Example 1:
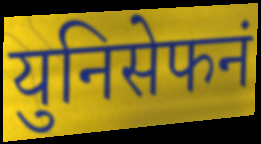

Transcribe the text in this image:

युनिसेफनं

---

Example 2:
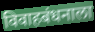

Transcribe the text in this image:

विवाहबंधनाला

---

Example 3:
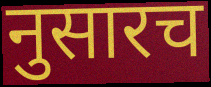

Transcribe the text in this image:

नुसारच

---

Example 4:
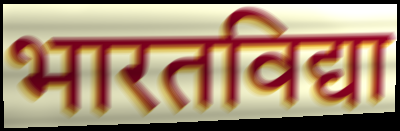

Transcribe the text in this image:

भारतविद्या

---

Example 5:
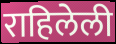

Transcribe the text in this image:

राहिलेली